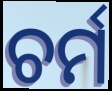
ଚର୍ମ